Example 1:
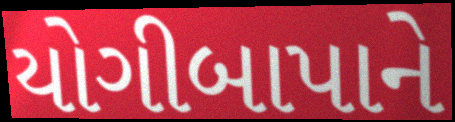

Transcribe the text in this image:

યોગીબાપાને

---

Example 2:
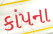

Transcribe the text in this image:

કાંપના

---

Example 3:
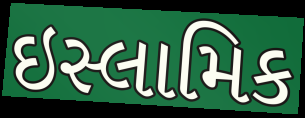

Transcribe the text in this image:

ઇસ્લામિક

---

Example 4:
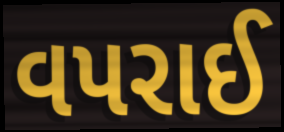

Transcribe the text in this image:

વપરાઈ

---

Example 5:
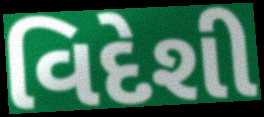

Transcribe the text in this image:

વિદેશી